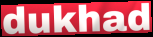
dukhad